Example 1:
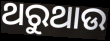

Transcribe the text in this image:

ଥରୁଥାଉ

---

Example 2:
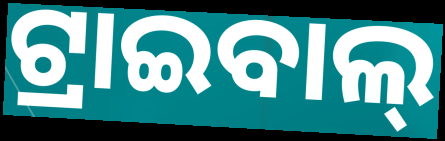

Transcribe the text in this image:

ଟ୍ରାଇବାଲ୍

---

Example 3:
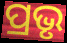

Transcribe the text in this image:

ପ୍ରଭୃ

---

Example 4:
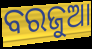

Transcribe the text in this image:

ବରଜୁଆ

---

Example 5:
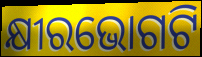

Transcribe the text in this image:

କ୍ଷୀରଭୋଗଟି